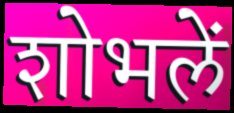
शोभलें